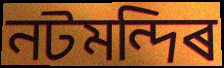
নটমন্দিৰ